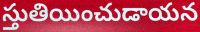
స్తుతియించుడాయన